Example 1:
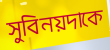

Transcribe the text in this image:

সুবিনয়দাকে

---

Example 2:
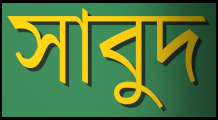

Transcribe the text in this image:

সাবুদ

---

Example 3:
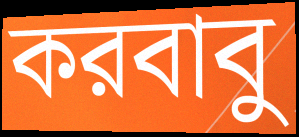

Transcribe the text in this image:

করবাবু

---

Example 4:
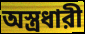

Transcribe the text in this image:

অস্ত্রধারী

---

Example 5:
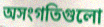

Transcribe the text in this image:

অসংগতিগুলো